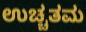
ಉಚ್ಚತಮ